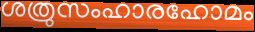
ശത്രുസംഹാരഹോമം